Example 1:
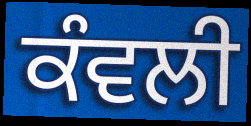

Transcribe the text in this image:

ਕੰਵਲੀ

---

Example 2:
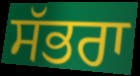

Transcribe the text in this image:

ਸੱਭਰਾ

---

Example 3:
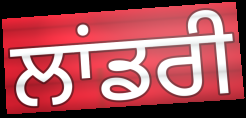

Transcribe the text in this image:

ਲਾਂਡਰੀ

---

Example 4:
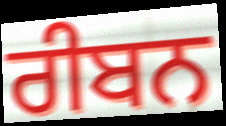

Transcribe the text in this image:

ਰੀਬਨ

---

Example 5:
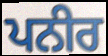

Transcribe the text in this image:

ਪਨੀਰ